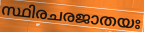
സ്ഥിരചരജാതയഃ